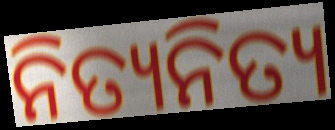
ନିତ୍ୟନିତ୍ୟ